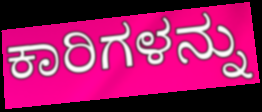
ಕಾರಿಗಳನ್ನು